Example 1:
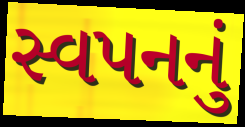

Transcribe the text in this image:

સ્વપનનું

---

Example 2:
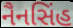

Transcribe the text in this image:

નૈનસિંહ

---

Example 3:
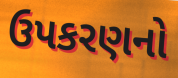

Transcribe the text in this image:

ઉપકરણનો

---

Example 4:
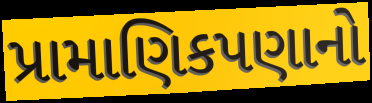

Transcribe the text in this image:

પ્રામાણિકપણાનો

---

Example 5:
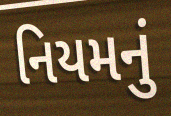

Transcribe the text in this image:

નિયમનું